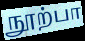
நூற்பா